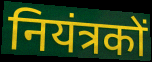
नियंत्रकों